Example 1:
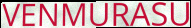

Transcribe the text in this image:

VENMURASU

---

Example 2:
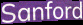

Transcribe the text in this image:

Sanford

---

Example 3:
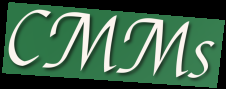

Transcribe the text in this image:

CMMs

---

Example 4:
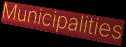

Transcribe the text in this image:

Municipalities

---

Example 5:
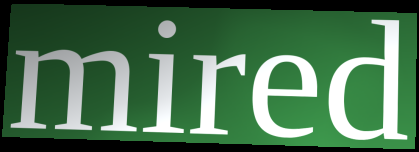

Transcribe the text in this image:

mired